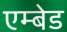
एम्बेड